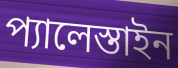
প্যালেস্তাইন